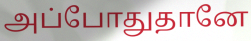
அப்போதுதானே